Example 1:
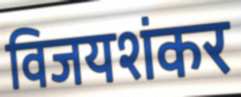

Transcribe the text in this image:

विजयशंकर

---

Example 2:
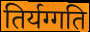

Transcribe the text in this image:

तिर्यग्गति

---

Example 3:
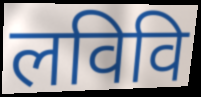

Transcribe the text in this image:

लविवि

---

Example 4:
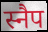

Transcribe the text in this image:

स्नैप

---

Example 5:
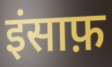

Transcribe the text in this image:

इंसाफ़